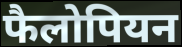
फैलोपियन